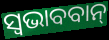
ସ୍ଵଭାବବାନ୍